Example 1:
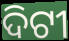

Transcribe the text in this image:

ଦିଟୀ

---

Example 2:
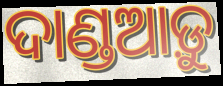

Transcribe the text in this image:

ଦାଣ୍ଡଆଡ଼ୁ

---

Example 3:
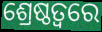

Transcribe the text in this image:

ଶ୍ରେଷ୍ଠତ୍ୱରେ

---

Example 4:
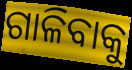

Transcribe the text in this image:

ଗାଳିବାକୁ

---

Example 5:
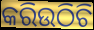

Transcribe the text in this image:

କରିଉଠିଚି